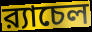
র‍্যাচেল